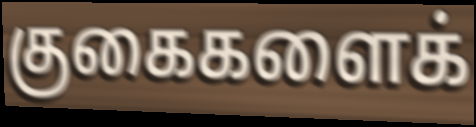
குகைகளைக்